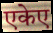
एकेए